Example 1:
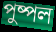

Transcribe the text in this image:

পুষ্পল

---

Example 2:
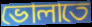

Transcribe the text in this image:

ভোলাতে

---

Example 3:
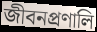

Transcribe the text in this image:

জীবনপ্রণালি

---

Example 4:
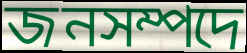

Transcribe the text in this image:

জনসম্পদে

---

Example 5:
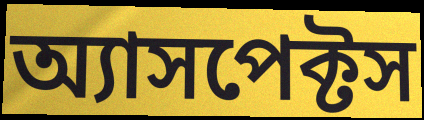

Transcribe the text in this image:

অ্যাসপেক্টস